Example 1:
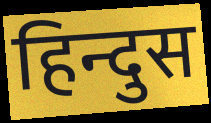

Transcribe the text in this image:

हिन्दुस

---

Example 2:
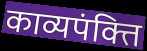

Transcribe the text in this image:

काव्यपंक्ति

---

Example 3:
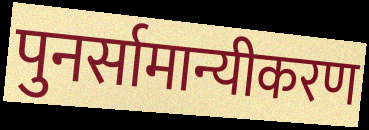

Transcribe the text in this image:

पुनर्सामान्यीकरण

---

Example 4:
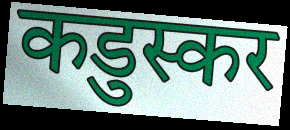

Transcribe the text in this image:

कडुस्कर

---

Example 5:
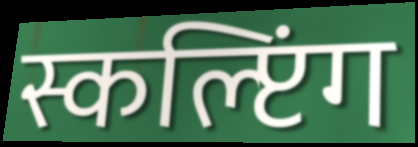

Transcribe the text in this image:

स्कल्प्टिंग